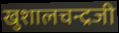
खुशालचन्द्रजी